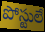
పోస్టులే